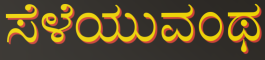
ಸೆಳೆಯುವಂಥ